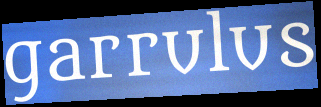
garrulus